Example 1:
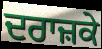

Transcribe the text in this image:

ਦਰਾਜ਼ਕੇ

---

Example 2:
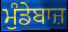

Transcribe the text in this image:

ਮੁੰਡੇਬਾਜ਼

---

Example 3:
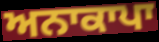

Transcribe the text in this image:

ਅਨਾਕਾਪਾ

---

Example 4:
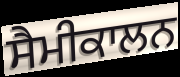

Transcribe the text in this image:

ਸੈਮੀਕਾਲਨ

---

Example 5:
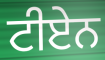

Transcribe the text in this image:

ਟੀਏਨ